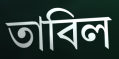
তাবিল